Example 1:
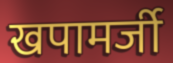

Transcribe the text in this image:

खपामर्जी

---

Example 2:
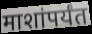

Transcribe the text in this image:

माशांपर्यंत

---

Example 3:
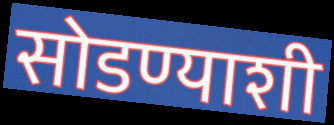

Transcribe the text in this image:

सोडण्याशी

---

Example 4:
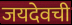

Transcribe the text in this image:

जयदेवची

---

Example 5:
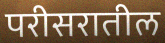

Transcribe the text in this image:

परीसरातील